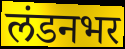
लंडनभर